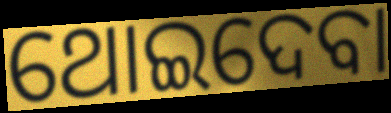
ଥୋଇଦେବା